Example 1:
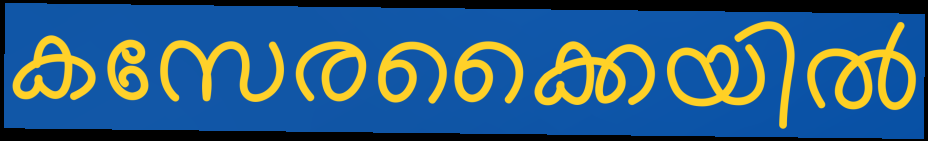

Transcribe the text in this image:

കസേരക്കൈയിൽ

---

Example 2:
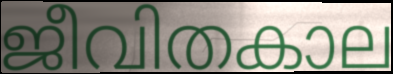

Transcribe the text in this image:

ജീവിതകാല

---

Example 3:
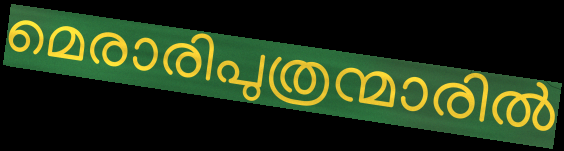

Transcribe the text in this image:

മെരാരിപുത്രന്മാരിൽ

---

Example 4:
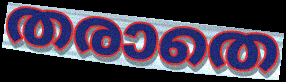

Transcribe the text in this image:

തരാതെ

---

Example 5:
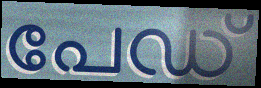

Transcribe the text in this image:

പേഡ്